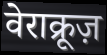
वेराक्रूज़